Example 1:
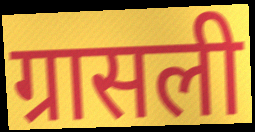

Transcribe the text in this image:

ग्रासली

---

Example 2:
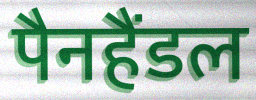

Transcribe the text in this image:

पैनहैंडल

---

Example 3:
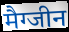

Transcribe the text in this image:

मैग्जीन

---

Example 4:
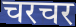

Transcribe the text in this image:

चरचर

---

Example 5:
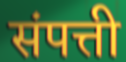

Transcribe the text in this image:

संपत्ती